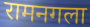
रामनगला